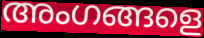
അംഗങ്ങളെ